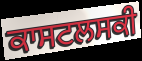
ਕਾਸਟਲਸਕੀ